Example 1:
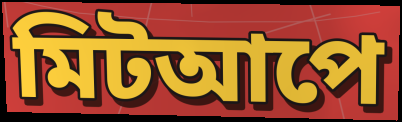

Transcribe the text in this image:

মিটআপে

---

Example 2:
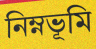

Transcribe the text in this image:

নিম্নভূমি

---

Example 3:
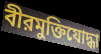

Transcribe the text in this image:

বীরমুক্তিযোদ্ধা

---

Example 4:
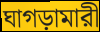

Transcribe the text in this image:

ঘাগড়ামারী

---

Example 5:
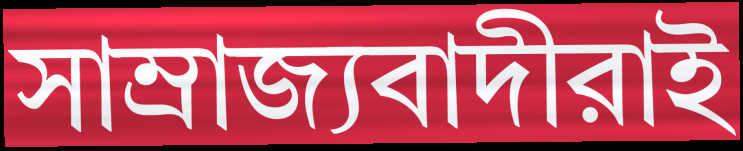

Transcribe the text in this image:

সাম্রাজ্যবাদীরাই